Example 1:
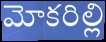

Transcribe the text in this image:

మోకరిల్లి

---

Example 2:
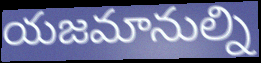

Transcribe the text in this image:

యజమానుల్ని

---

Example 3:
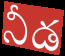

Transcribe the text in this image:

నీడ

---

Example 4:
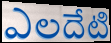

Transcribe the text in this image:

ఎలదేటి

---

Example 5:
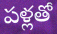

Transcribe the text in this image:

పళ్లతో